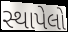
સ્થાપેલો